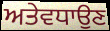
ਅਤੇਵਧਾਉਣ